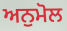
ਅਨੁਮੋਲ